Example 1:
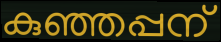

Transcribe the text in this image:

കുഞ്ഞപ്പന്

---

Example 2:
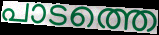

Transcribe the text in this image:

പാടത്തെ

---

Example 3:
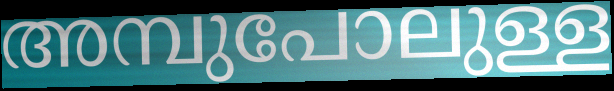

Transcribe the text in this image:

അമ്പുപോലുള്ള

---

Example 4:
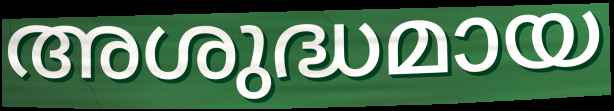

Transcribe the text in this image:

അശുദ്ധമായ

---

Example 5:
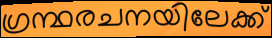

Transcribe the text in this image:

ഗ്രന്ഥരചനയിലേക്ക്